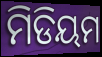
ମିଡିୟମ